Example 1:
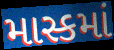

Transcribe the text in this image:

માસ્કમાં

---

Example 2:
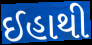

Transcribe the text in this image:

ઈહાથી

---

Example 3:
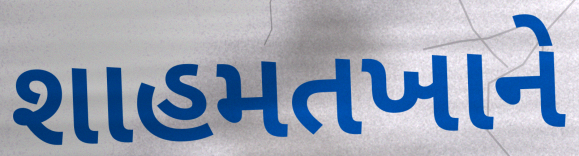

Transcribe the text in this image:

શાહમતખાને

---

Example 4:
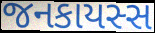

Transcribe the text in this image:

જનકાયસ્સ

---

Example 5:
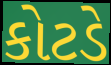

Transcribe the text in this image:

કોટડે